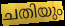
ചതിയും